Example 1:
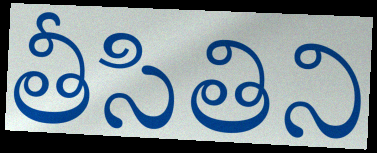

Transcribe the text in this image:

తీసితిని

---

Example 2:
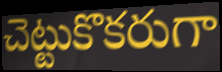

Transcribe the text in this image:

చెట్టుకొకరుగా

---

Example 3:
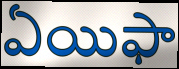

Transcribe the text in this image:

ఏయిఫా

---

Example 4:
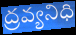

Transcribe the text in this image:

ద్రవ్యనిధి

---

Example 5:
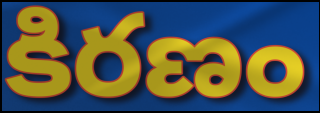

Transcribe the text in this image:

కిరణం